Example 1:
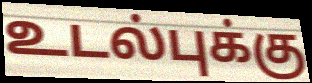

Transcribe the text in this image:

உடல்புக்கு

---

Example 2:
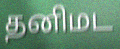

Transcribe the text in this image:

தனிமட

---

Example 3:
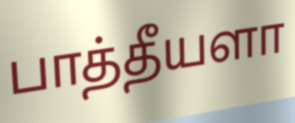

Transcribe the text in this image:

பாத்தீயளா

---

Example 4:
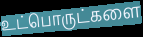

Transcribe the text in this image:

உட்பொருட்களை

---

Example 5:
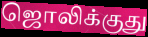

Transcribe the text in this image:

ஜொலிக்குது